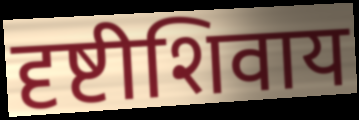
दृष्टीशिवाय